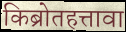
किब्रोतहत्तावा